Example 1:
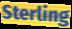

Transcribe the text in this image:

Sterling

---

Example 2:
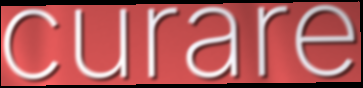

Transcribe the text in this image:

curare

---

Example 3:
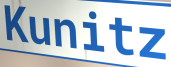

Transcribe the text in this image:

Kunitz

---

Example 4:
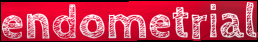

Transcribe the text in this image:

endometrial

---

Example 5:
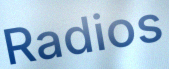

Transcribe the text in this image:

Radios